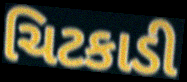
ચિટકાડી